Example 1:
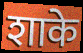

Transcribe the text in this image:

शाके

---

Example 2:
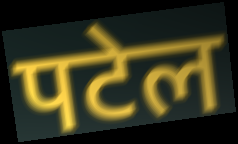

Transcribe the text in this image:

पटेल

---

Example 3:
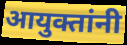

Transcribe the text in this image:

आयुक्तांनी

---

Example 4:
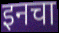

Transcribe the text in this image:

इनचा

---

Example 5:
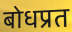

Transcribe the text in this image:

बोधप्रत